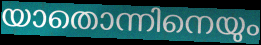
യാതൊന്നിനെയും